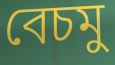
বেচমু